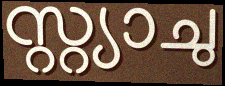
സ്റ്റ്യാചു